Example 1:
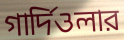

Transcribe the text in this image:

গার্দিওলার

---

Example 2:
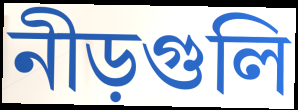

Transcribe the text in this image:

নীড়গুলি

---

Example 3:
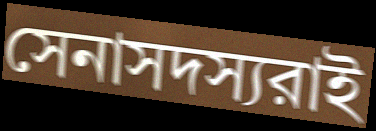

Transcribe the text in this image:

সেনাসদস্যরাই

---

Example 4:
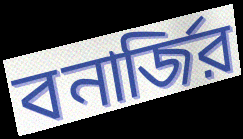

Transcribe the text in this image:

বনার্জির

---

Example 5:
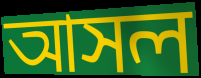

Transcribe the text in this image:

আসল